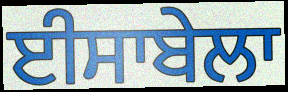
ਈਸਾਬੇਲਾ